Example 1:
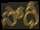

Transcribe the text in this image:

సోధీ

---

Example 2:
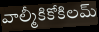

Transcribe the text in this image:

వాల్మీకికోకిలమ్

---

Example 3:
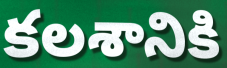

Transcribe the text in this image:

కలశానికి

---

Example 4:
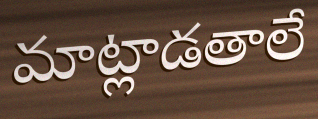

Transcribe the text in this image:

మాట్లాడతాలే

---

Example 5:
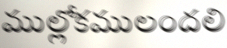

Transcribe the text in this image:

ముల్లోకములందలి